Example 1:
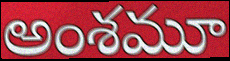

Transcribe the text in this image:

అంశమూ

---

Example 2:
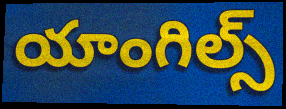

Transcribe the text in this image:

యాంగిల్స్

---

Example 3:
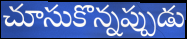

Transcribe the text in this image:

చూసుకొన్నప్పుడు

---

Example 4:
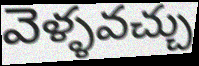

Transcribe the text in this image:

వెళ్ళవచ్చు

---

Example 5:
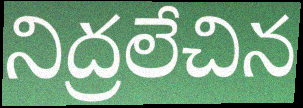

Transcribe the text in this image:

నిద్రలేచిన